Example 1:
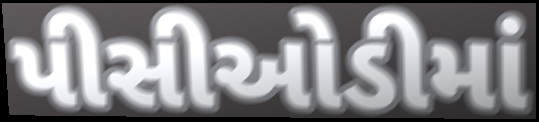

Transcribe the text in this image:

પીસીઓડીમાં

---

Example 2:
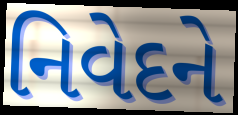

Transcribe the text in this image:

નિવેદને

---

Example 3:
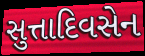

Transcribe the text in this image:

સુત્તાદિવસેન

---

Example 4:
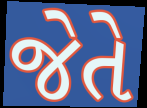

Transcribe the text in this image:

જેતે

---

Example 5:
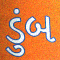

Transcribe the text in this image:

ડુંબ